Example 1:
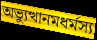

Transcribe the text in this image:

অভ্যুত্থানমধর্মস্য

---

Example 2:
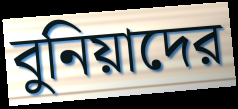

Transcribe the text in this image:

বুনিয়াদের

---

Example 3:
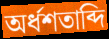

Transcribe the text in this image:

অর্ধশতাব্দি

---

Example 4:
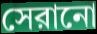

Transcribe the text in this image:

সেরানো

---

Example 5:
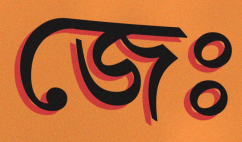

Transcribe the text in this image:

জেঃ